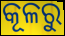
କୂଳରୁ